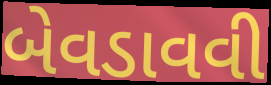
બેવડાવવી